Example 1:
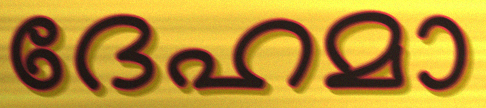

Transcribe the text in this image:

ദേഹമാ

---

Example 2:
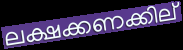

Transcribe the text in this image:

ലക്ഷക്കണക്കില്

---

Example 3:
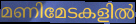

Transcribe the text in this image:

മണിമേടകളിൽ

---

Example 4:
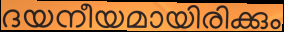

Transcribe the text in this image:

ദയനീയമായിരിക്കും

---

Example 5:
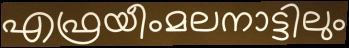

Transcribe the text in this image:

എഫ്രയീംമലനാട്ടിലും